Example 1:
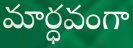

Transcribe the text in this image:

మార్ధవంగా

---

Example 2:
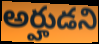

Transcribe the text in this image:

అర్హుడని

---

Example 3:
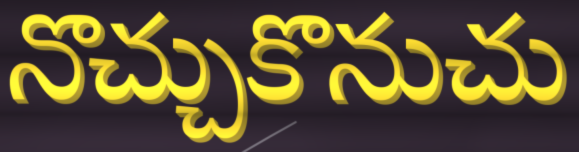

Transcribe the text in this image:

నొచ్చుకొనుచు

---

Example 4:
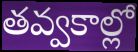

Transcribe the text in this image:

తవ్వకాల్లో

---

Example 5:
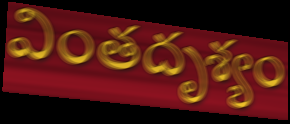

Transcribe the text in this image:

వింతదృశ్యం